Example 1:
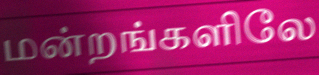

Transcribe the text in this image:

மன்றங்களிலே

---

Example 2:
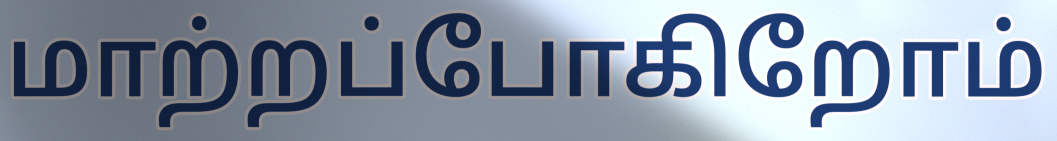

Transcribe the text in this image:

மாற்றப்போகிறோம்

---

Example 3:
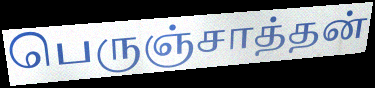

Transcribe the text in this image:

பெருஞ்சாத்தன்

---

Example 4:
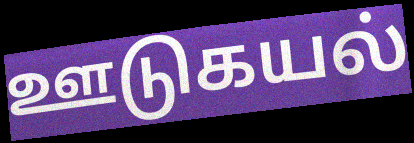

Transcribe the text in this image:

ஊடுகயல்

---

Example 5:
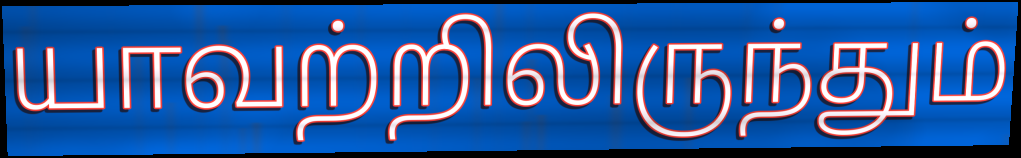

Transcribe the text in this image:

யாவற்றிலிருந்தும்